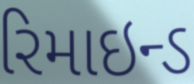
રિમાઇન્ડ